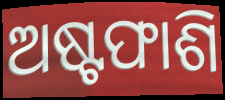
ଅଷ୍ଟଫାଶି